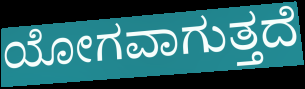
ಯೋಗವಾಗುತ್ತದೆ